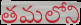
తమలోని